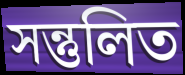
সন্তুলিত